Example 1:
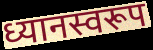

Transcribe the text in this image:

ध्यानस्वरूप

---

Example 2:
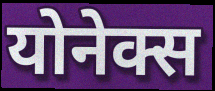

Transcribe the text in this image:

योनेक्स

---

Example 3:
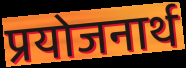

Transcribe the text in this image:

प्रयोजनार्थ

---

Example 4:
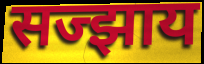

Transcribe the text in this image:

सज्झाय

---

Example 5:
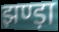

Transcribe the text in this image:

झण्ड़ा